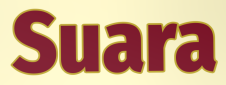
Suara